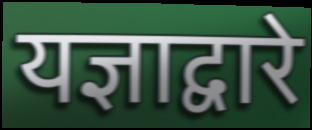
यज्ञाद्वारे